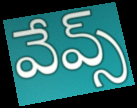
వేవ్స్